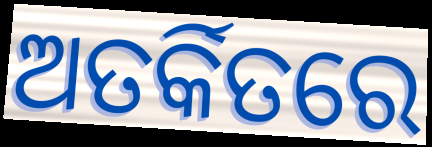
ଅତର୍କିତରେ